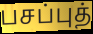
பசப்புத்